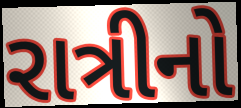
રાત્રીનો